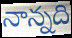
నాన్నది